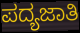
ಪದ್ಯಜಾತಿ